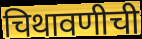
चिथावणीची